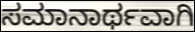
ಸಮಾನಾರ್ಥವಾಗಿ